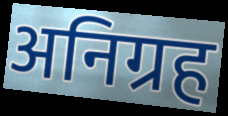
अनिग्रह